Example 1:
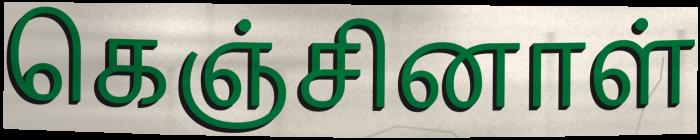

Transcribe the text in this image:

கெஞ்சினாள்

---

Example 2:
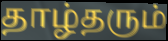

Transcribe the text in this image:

தாழ்தரும்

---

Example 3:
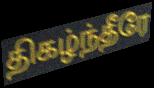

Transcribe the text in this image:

திகழ்ந்தீரே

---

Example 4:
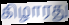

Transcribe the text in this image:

கிழாரது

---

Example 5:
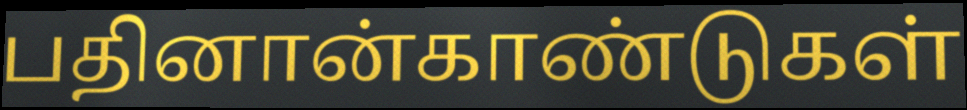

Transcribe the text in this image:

பதினான்காண்டுகள்